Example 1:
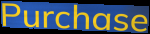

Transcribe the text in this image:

Purchase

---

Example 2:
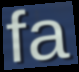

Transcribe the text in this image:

fa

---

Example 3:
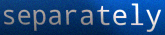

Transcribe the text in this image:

separately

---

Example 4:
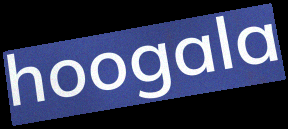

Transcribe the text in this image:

hoogala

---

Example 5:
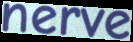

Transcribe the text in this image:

nerve